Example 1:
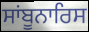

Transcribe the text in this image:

ਸਾਂਬੂਨਾਰਿਸ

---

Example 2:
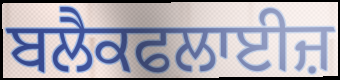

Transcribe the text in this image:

ਬਲੈਕਫਲਾਈਜ਼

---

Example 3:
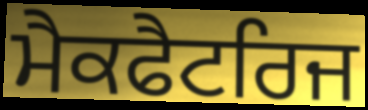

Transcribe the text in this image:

ਮੈਕਫੈਟਰਿਜ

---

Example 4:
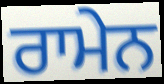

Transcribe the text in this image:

ਰਾਮੇਨ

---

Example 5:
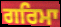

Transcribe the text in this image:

ਗਰਿਮਾ